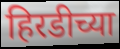
हिरडीच्या